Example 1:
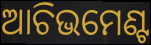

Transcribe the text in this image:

ଆଚିଭମେଣ୍ଟ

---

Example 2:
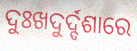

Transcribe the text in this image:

ଦୁଃଖଦୁର୍ଦ୍ଦଶାରେ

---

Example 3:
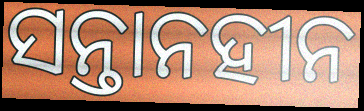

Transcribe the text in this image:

ସନ୍ତାନହୀନ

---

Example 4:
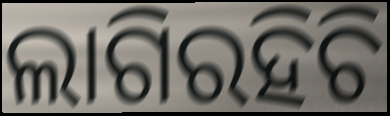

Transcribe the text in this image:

ଲାଗିରହିଚି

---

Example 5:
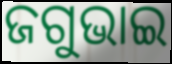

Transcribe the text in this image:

ଜଗୁଭାଇ